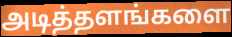
அடித்தளங்களை